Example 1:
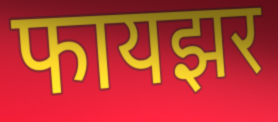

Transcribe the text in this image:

फायझर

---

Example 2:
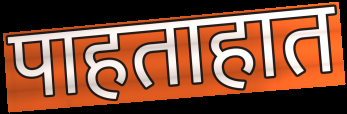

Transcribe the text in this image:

पाहताहात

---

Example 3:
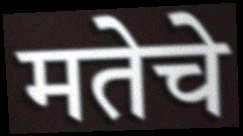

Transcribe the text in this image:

मतेचे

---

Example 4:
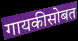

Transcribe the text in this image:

गायकीसोबत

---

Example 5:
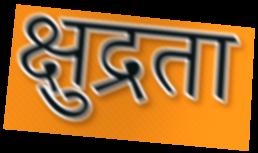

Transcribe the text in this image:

क्षुद्रता